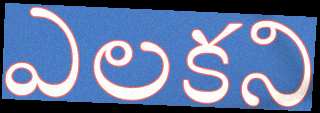
ఎలకని